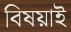
বিষয়াই